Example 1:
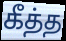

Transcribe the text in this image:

கீத்த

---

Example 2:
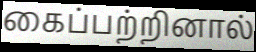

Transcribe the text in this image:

கைப்பற்றினால்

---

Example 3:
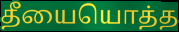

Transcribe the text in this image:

தீயையொத்த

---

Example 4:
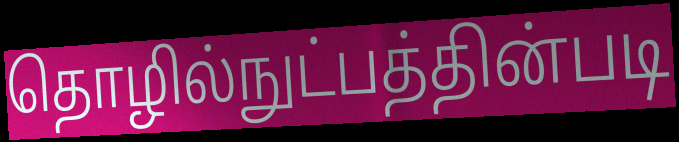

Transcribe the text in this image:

தொழில்நுட்பத்தின்படி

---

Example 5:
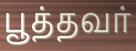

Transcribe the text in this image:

பூத்தவர்